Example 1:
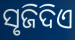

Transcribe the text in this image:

ସୃଜିଦିଏ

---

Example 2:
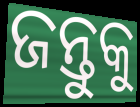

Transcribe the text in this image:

ଜନ୍ତୁକୁ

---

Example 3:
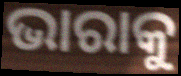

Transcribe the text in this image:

ଭାରାକୁ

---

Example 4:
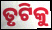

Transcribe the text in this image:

ତୃଟିକୁ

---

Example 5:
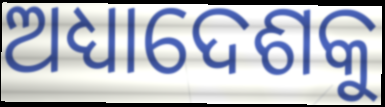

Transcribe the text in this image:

ଅଧ୍ୟାଦେଶକୁ